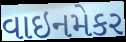
વાઇનમેકર